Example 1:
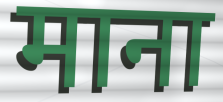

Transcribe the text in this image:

माना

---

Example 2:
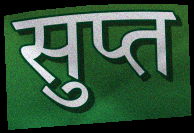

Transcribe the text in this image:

सुप्त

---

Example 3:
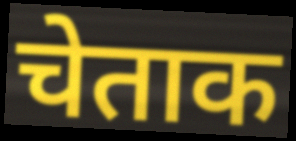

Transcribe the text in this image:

चेताक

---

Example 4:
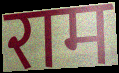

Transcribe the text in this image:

राम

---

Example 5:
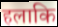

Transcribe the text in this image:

हलाकि